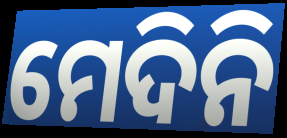
ମେଦିନି